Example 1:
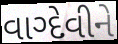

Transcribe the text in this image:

વાગ્દેવીને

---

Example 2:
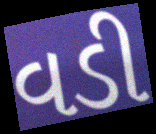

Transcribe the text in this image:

વડી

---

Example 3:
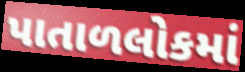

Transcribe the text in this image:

પાતાળલોકમાં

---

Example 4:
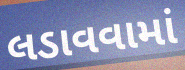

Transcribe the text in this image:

લડાવવામાં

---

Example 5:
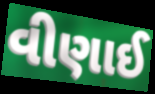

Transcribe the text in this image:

વીણાઈ